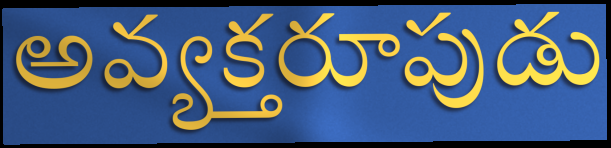
అవ్యక్తరూపుడు